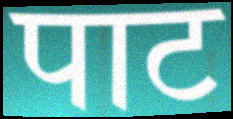
पाट